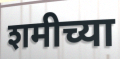
शमीच्या